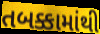
તબક્કામાંથી